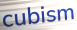
cubism